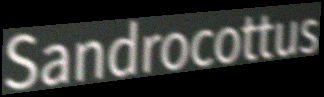
Sandrocottus